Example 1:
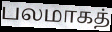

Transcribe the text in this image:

பலமாகத்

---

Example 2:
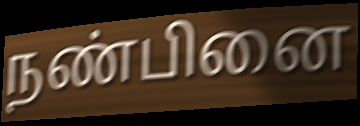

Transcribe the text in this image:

நண்பினை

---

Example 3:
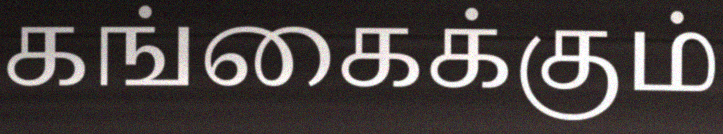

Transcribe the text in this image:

கங்கைக்கும்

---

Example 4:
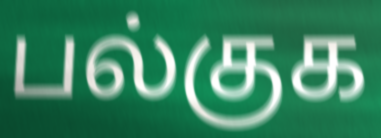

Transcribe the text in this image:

பல்குக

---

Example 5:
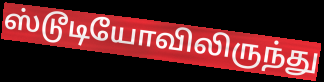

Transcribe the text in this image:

ஸ்டூடியோவிலிருந்து